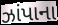
ઝાંપાના